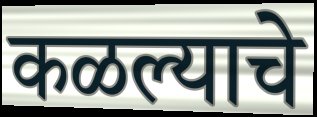
कळल्याचे